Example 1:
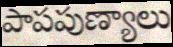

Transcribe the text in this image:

పాపపుణ్యాలు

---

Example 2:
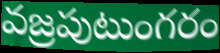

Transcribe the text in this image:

వజ్రపుటుంగరం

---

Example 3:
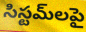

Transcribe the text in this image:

సిస్టమ్‌లపై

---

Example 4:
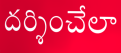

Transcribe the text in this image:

దర్శించేలా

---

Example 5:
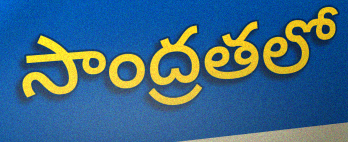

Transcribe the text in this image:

సాంద్రతలో